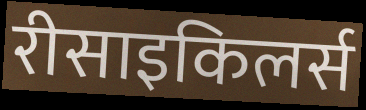
रीसाइकिलर्स